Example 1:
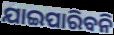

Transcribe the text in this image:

ଯାଇପାରିବନି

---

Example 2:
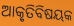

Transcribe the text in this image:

ଆକୃତିବିଷୟକ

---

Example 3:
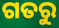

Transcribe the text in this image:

ଗତରୁ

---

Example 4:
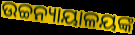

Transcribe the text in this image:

ଉଚ୍ଚନ୍ୟାୟାଳୟଙ୍କ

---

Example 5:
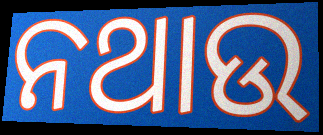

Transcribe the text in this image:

ନଥାଉ